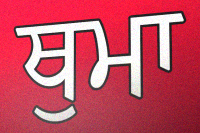
ਥੁਮਾ